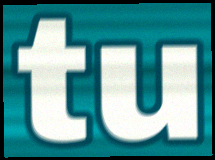
tu